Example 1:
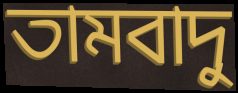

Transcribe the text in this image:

তামবাদু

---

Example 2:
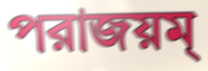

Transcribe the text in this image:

পরাজয়ম্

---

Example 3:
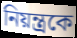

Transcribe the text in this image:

নিয়ন্ত্রকে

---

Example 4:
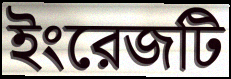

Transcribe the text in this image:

ইংরেজটি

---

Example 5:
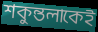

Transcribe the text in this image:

শকুন্তলাকেই